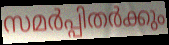
സമർപ്പിതർക്കും